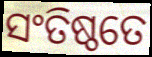
ସଂତିଷ୍ଠତେ